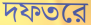
দফতরে